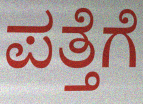
ಪತ್ತೆಗೆ